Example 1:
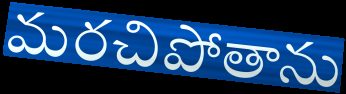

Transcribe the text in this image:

మరచిపోతాను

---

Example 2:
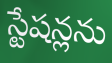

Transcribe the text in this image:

స్టేషన్లను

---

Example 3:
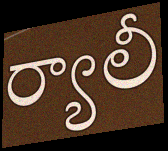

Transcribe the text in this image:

ర్యాలీ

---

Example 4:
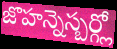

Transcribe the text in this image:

జొహన్నెస్బర్గ్లో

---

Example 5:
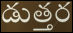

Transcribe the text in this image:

డుత్తర